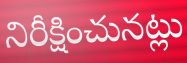
నిరీక్షించునట్లు